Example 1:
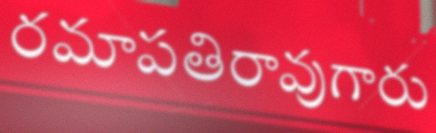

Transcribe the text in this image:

రమాపతిరావుగారు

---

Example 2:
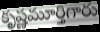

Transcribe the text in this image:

కృష్ణమూర్తిగారు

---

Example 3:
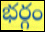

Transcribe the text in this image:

భర్గం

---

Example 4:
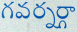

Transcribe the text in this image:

గవర్నర్గా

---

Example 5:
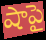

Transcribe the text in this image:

షాపై